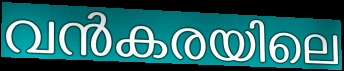
വൻകരയിലെ